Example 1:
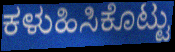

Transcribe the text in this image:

ಕಳುಹಿಸಿಕೊಟ್ಟು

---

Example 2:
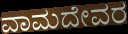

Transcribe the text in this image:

ವಾಮದೇವರ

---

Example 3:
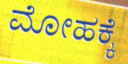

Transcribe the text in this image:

ಮೋಹಕ್ಕೆ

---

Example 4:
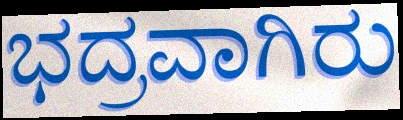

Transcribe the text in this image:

ಭದ್ರವಾಗಿರು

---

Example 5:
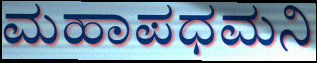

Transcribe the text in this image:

ಮಹಾಪಧಮನಿ